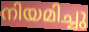
നിയമിച്ചു